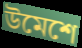
উমেশে